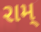
રામ્